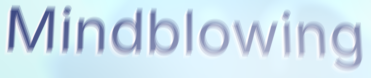
Mindblowing